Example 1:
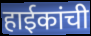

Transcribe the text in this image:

हाईकांची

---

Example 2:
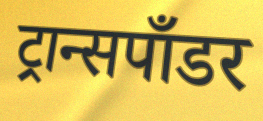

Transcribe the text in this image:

ट्रान्सपाँडर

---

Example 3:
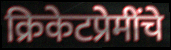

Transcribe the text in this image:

क्रिकेटप्रेमींचे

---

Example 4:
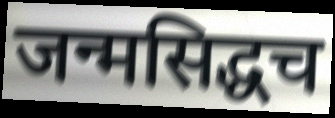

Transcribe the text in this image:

जन्मसिद्धच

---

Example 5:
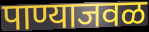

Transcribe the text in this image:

पाण्याजवळ